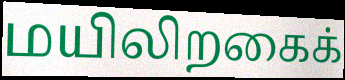
மயிலிறகைக்